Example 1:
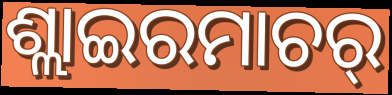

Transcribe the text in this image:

ଶ୍ଲାଇରମାଚର୍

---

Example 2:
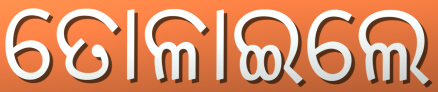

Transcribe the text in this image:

ତୋଳାଇଲେ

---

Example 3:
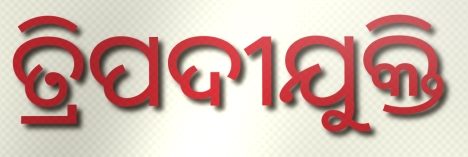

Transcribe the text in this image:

ତ୍ରିପଦୀଯୁକ୍ତି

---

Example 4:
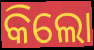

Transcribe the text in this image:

କିଲୋ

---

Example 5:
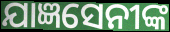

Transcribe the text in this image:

ଯାଜ୍ଞସେନୀଙ୍କ